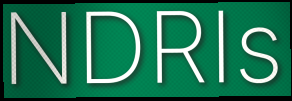
NDRIs